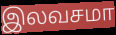
இலவசமா